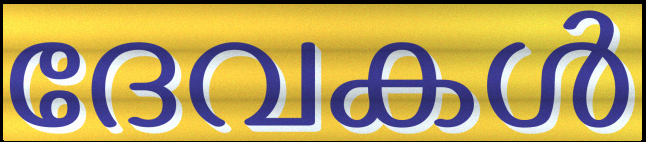
ദേവകൾ